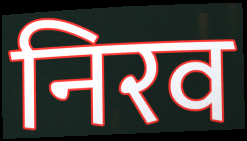
निरव